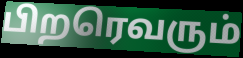
பிறரெவரும்